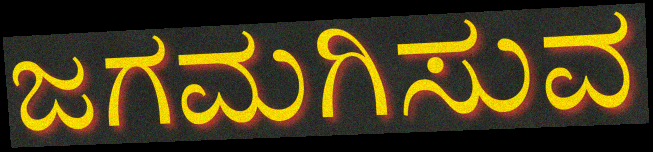
ಜಗಮಗಿಸುವ